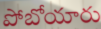
పోబోయారు